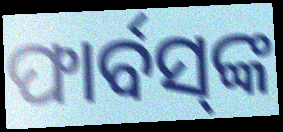
ଫାର୍ବସ୍‌ଙ୍କ